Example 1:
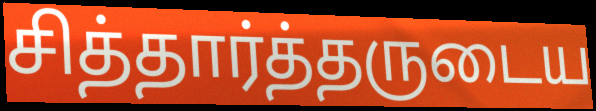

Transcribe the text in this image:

சித்தார்த்தருடைய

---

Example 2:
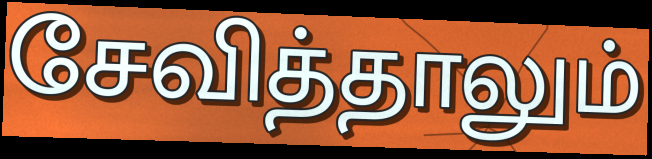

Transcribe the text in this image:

சேவித்தாலும்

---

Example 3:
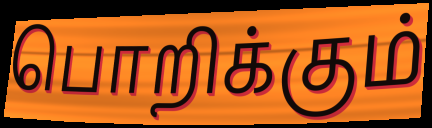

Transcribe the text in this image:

பொறிக்கும்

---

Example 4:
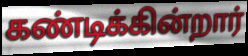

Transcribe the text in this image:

கண்டிக்கின்றார்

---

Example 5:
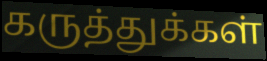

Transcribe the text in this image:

கருத்துக்கள்